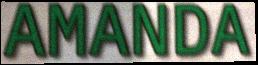
AMANDA